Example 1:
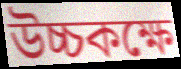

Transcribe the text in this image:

উচ্চকক্ষে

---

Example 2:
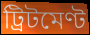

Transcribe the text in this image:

ট্রিটমেণ্ট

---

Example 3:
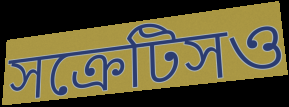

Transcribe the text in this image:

সক্রেটিসও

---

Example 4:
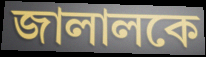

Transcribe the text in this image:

জালালকে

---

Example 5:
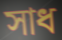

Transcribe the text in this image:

সাধ